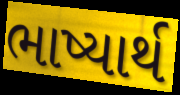
ભાષ્યાર્થ